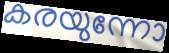
കരയുന്നോ